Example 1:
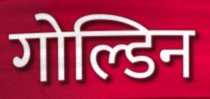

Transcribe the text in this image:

गोल्डिन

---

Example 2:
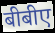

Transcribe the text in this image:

बीबीए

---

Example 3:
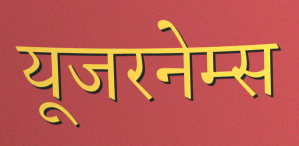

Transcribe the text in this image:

यूजरनेम्स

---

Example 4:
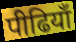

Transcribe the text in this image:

पीढियाँ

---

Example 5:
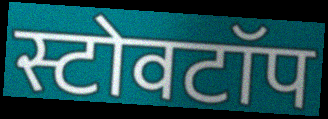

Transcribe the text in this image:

स्टोवटॉप